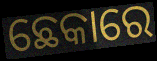
ଛେକାରେ